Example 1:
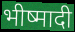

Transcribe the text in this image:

भीष्मादी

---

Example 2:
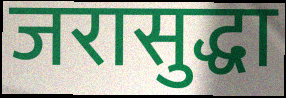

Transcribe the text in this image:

जरासुद्धा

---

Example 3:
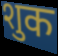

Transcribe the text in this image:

शुक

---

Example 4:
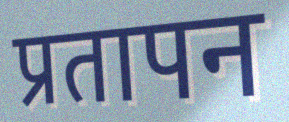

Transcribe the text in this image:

प्रतापन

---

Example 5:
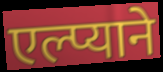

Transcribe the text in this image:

एल्प्याने